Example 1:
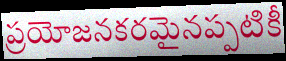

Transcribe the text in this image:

ప్రయోజనకరమైనప్పటికీ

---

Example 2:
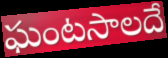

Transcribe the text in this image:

ఘంటసాలదే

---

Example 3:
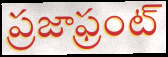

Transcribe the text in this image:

ప్రజాఫ్రంట్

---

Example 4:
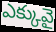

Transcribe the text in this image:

ఎక్కువై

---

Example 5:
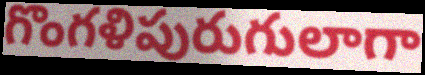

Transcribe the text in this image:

గొంగళిపురుగులాగా